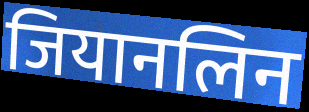
जियानलिन